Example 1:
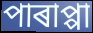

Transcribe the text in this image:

পাৰাপ্পা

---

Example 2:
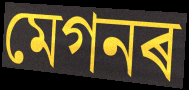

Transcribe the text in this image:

মেগনৰ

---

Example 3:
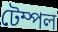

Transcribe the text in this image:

টেম্পল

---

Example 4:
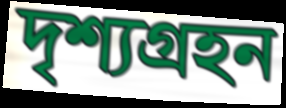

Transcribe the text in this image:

দৃশ্যগ্ৰহন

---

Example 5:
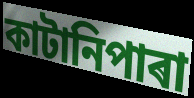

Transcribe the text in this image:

কাটানিপাৰা